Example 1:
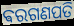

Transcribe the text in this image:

ଵରଗଣପତି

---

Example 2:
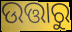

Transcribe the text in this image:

ଉତ୍ତାରୁ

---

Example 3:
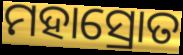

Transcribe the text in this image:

ମହାସ୍ରୋତ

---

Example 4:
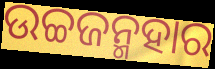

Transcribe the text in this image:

ଉଚ୍ଚଜନ୍ମହାର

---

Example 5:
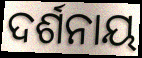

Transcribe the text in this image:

ଦର୍ଶନାୟ